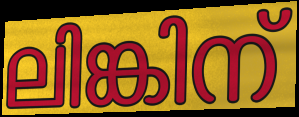
ലിങ്കിന്